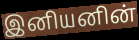
இனியனின்